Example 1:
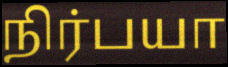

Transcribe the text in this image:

நிர்பயா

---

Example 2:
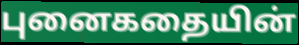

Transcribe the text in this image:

புனைகதையின்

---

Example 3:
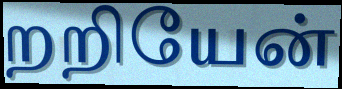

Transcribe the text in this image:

றறியேன்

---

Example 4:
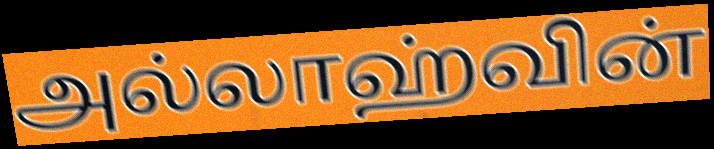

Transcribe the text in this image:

அல்லாஹ்வின்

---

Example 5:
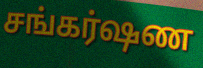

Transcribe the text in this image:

சங்கர்ஷண